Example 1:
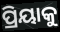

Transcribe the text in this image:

ପ୍ରିୟାକୁ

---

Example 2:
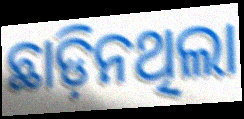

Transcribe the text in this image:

ଛାଡ଼ିନଥିଲା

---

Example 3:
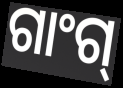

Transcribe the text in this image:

ଗାଂଗ୍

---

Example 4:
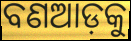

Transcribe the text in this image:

ବଣଆଡ଼କୁ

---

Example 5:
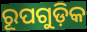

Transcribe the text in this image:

ରୂପଗୁଡ଼ିକ